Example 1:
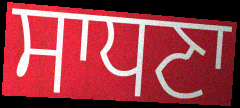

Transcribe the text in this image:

ਸਾਧਣਾ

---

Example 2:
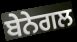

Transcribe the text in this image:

ਬੇਨੇਗਲ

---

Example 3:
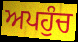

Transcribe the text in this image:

ਅਪਹੁੰਚ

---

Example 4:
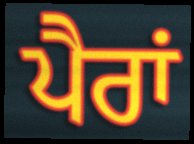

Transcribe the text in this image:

ਪੈਰਾਂ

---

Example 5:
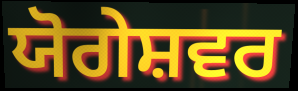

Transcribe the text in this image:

ਯੋਗੇਸ਼ਵਰ